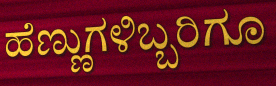
ಹೆಣ್ಣುಗಳಿಬ್ಬರಿಗೂ